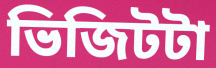
ভিজিটটা